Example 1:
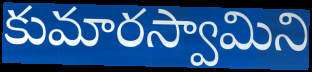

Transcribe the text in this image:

కుమారస్వామిని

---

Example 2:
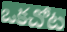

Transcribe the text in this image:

ఒకచోట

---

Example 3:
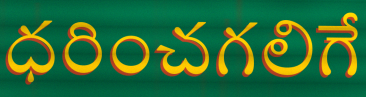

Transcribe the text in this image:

ధరించగలిగే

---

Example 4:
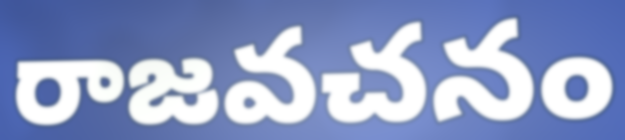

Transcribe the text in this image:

రాజవచనం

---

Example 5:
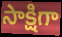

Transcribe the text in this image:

సాక్షిగా